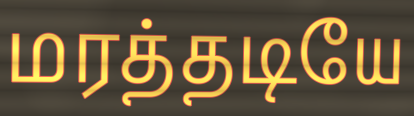
மரத்தடியே